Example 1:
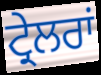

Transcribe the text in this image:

ਟ੍ਰੇਲਰਾਂ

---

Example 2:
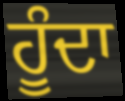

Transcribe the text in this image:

ਹੂੰਦਾ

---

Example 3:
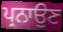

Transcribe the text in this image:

ਪ੍ਰਨਾਉਣ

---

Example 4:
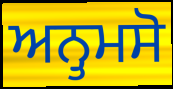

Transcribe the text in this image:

ਅਨ੍ਤਮਸੋ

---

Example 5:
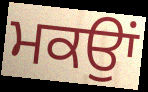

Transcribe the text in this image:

ਮਕਉਾਂ